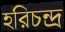
হরিচন্দ্র